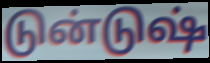
டுன்டுஷ்